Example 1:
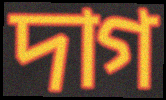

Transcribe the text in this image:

দাগ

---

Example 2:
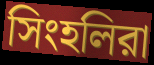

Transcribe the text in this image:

সিংহলিরা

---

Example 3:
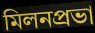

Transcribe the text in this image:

মিলনপ্রভা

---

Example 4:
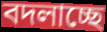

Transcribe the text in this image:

বদলাচ্ছে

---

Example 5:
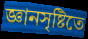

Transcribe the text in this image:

জ্ঞানসৃষ্টিতে